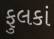
ફુલકાં